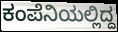
ಕಂಪೆನಿಯಲ್ಲಿದ್ದ